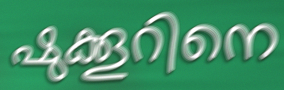
ഷുക്കൂറിനെ